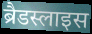
ब्रैडस्लाइस